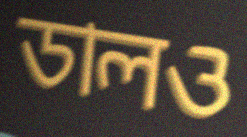
ডালও